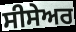
ਸੀਸੇਅਰ